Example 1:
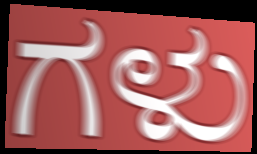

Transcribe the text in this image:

ಗಳು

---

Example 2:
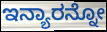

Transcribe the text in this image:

ಇನ್ಯಾರನ್ನೋ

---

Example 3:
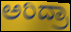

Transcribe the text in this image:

ಅರಿದ್ರಾ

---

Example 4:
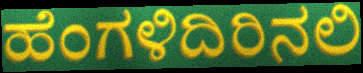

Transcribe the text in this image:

ಹೆಂಗಳಿದಿರಿನಲಿ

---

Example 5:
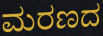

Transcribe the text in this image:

ಮರಣದ